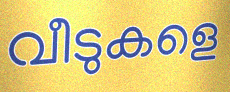
വീടുകളെ